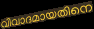
വിവാദമായതിനെ